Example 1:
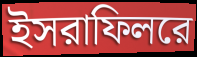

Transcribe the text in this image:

ইসরাফিলরে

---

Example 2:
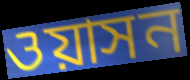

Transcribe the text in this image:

ওয়াসন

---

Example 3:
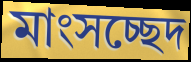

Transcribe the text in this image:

মাংসচ্ছেদ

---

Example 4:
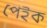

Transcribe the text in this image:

পেইক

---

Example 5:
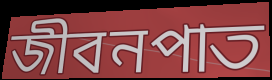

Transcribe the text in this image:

জীবনপাত